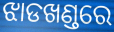
ଝାଡଖଣ୍ଡରେ